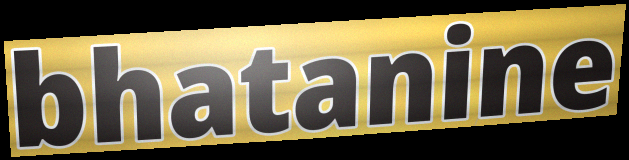
bhatanine